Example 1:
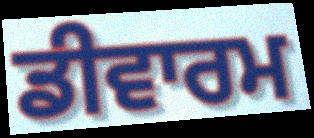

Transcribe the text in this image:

ਡੀਵਾਰਮ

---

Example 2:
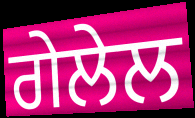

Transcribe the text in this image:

ਗੇਲੇਲ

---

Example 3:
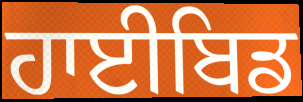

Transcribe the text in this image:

ਹਾਈਬਿਡ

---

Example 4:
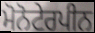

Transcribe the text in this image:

ਮੋਨੋਟੇਰਪੀਨ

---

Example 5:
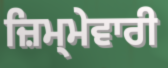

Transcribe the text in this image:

ਜ਼ਿਮ੍ਮੇਵਾਰੀ